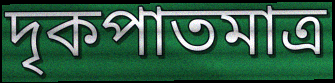
দৃকপাতমাত্র